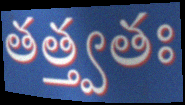
తత్త్వతః